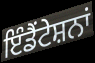
ਇੰਡੈਂਟੇਸ਼ਨਾਂ